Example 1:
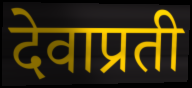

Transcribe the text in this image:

देवाप्रती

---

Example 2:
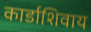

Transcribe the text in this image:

कार्डाशिवाय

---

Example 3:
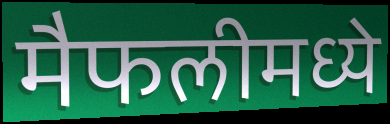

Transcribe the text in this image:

मैफलीमध्ये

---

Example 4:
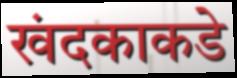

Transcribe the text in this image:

खंदकाकडे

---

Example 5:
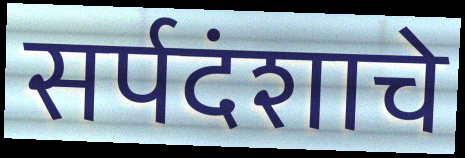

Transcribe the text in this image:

सर्पदंशाचे